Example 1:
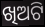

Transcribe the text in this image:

ଖିଅଟି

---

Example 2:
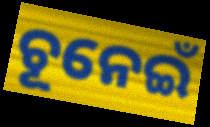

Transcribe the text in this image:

ଚୂନେଇଁ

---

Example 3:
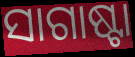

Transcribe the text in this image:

ସାଗାଷ୍ଟା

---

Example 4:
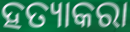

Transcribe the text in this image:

ହତ୍ୟାକରା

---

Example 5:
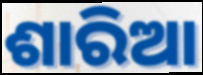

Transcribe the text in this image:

ଶାରିଆ